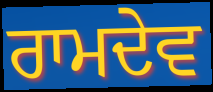
ਰਾਮਦੇਵ